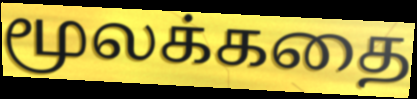
மூலக்கதை